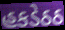
હકડેઠઠ